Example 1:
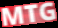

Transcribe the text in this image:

MTG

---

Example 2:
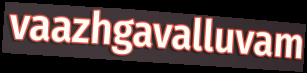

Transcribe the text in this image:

vaazhgavalluvam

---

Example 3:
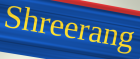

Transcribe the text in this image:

Shreerang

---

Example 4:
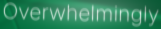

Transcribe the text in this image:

Overwhelmingly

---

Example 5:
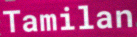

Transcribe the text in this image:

Tamilan